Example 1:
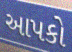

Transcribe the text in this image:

આપકો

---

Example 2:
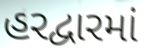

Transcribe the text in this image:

હરદ્વારમાં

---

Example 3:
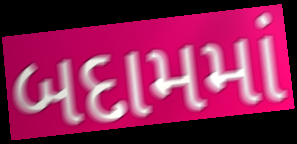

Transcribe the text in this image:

બદામમાં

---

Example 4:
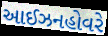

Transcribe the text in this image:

આઈઝનહોવરે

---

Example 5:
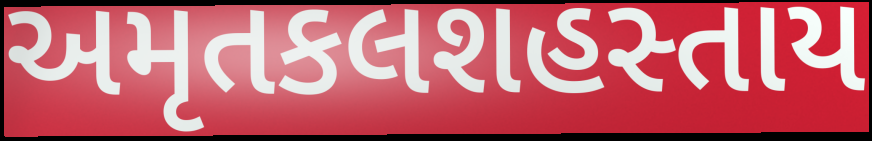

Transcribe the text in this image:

અમૃતકલશહસ્તાય